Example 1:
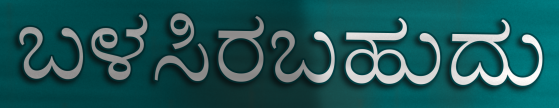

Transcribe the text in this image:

ಬಳಸಿರಬಹುದು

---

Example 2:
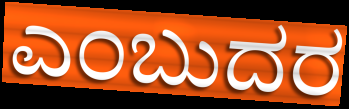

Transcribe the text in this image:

ಎಂಬುದರ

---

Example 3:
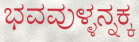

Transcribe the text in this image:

ಭವವುಳ್ಳನ್ನಕ್ಕ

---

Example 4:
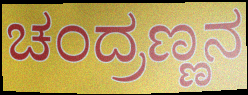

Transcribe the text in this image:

ಚಂದ್ರಣ್ಣನ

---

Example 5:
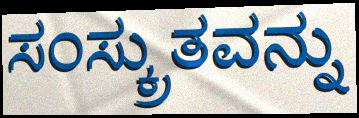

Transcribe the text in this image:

ಸಂಸ್ಕ್ರುತವನ್ನು